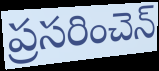
ప్రసరించెన్